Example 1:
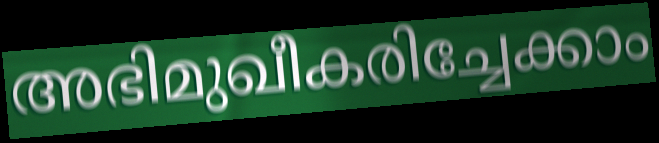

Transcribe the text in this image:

അഭിമുഖീകരിച്ചേക്കാം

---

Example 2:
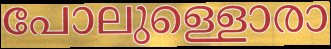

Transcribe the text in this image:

പോലുള്ളൊരാ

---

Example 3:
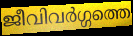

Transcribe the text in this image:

ജീവിവർഗ്ഗത്തെ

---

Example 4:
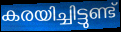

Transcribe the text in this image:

കരയിച്ചിട്ടുണ്ട്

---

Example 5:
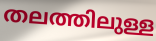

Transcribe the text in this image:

തലത്തിലുള്ള